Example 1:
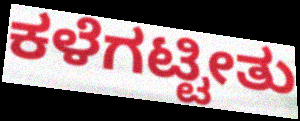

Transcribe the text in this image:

ಕಳೆಗಟ್ಟೀತು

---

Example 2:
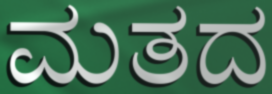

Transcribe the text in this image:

ಮತದ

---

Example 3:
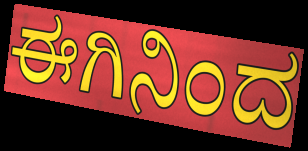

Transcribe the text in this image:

ಈಗಿನಿಂದ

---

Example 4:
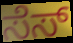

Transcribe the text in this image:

ಸೆಸ್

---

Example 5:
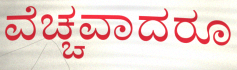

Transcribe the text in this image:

ವೆಚ್ಚವಾದರೂ